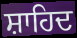
ਸ਼ਾਹਿਦ